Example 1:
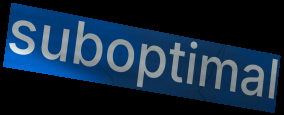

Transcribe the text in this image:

suboptimal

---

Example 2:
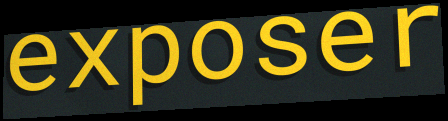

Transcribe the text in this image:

exposer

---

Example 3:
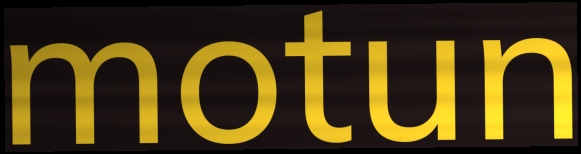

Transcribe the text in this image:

motun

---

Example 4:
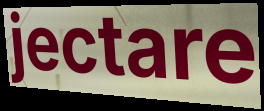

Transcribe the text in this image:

jectare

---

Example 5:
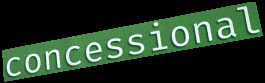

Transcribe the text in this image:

concessional